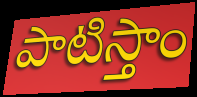
పాటిస్తాం